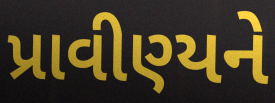
પ્રાવીણ્યને